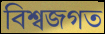
বিশ্বজগত